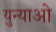
युन्याओ